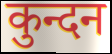
कुन्दन